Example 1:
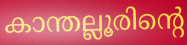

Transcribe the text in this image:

കാന്തല്ലൂരിന്റെ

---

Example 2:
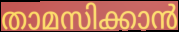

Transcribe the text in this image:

താമസിക്കാൻ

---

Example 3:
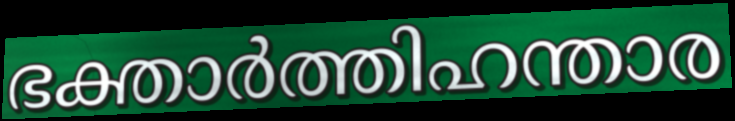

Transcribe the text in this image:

ഭക്താർത്തിഹന്താര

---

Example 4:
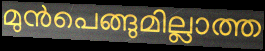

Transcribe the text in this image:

മുൻപെങ്ങുമില്ലാത്ത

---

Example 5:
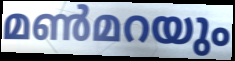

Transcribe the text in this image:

മൺമറയും